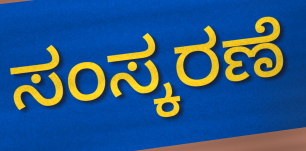
ಸಂಸ್ಕರಣೆ